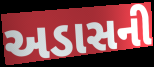
અડાસની